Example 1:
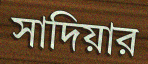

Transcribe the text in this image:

সাদিয়ার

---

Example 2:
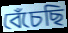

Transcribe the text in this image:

বেঁচেছি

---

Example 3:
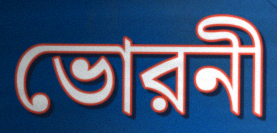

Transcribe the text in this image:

ভোরনী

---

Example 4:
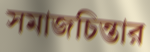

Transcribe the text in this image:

সমাজচিন্তার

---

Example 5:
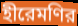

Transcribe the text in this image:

হীরেমণির